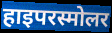
हाइपरस्मोलर